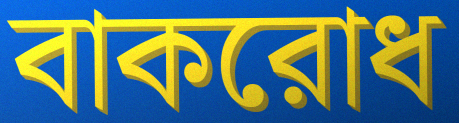
বাকরোধ